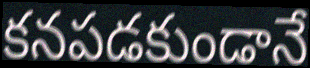
కనపడకుండానే